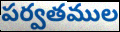
పర్వతముల